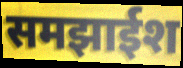
समझाईश